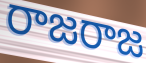
రాజరాజ